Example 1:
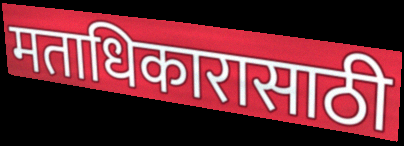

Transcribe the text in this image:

मताधिकारासाठी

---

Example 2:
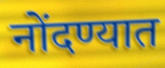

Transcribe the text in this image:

नोंदण्यात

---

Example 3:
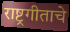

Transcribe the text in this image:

राष्ट्रगीताचे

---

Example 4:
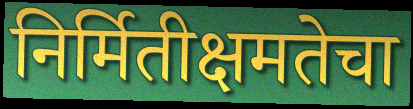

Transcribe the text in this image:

निर्मितीक्षमतेचा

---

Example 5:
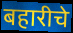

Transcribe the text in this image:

बहारीचे